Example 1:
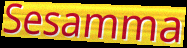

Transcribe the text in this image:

Sesamma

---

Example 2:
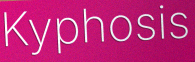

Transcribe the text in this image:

Kyphosis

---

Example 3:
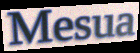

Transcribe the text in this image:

Mesua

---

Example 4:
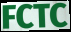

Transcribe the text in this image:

FCTC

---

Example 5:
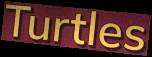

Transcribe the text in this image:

Turtles